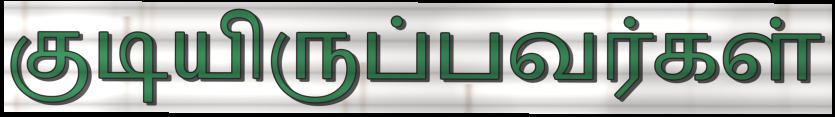
குடியிருப்பவர்கள்